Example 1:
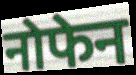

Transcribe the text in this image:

नोफेन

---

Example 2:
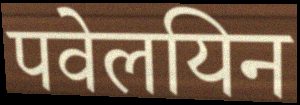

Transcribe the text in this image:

पवेलयिन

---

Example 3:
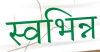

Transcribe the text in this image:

स्वभिन्न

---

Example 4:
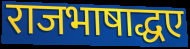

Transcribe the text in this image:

राजभाषाद्धए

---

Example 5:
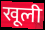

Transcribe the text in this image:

खूली